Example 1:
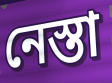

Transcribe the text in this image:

নেস্তা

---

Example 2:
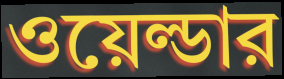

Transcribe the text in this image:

ওয়েল্ডার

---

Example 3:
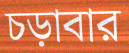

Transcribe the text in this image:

চড়াবার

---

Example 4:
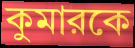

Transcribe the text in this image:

কুমারকে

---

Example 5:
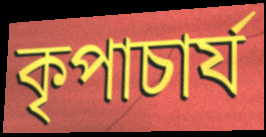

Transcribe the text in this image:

কৃপাচার্য